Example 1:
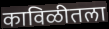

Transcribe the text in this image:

काविळीतला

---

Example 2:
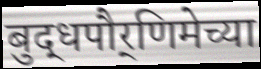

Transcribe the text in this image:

बुद्धपौर्णिमेच्या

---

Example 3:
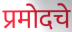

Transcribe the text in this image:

प्रमोदचे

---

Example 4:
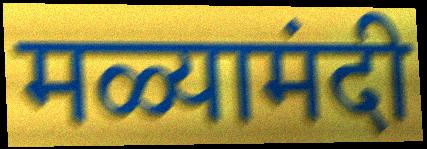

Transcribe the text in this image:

मळ्यामंदी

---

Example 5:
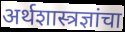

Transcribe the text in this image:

अर्थशास्त्रज्ञांचा